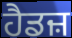
ਹੈਡਜ਼